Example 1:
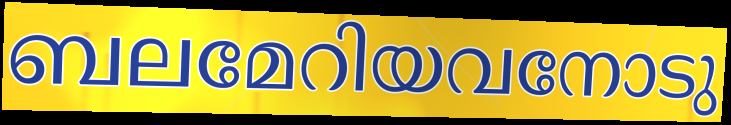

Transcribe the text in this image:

ബലമേറിയവനോടു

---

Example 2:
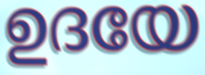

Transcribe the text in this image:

ഉദയേ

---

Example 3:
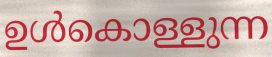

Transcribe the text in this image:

ഉൾകൊള്ളുന്ന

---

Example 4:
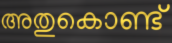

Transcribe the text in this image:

അതുകൊണ്ട്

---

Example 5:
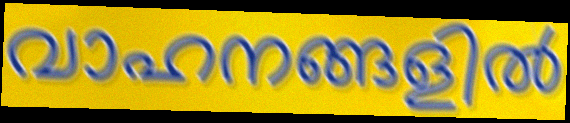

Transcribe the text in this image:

വാഹനങ്ങളിൽ